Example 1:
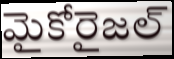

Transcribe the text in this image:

మైకోరైజల్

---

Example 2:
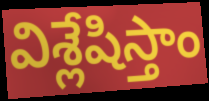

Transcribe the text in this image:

విశ్లేషిస్తాం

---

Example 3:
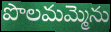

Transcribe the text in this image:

పొలమమ్మెను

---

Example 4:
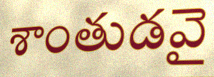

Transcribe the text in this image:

శాంతుడవై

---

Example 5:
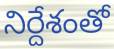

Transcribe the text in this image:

నిర్దేశంతో